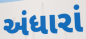
અંધારાં